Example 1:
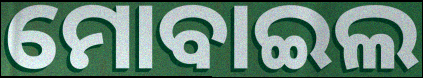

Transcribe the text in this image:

ମୋବାଇଲ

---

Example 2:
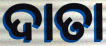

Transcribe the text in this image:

ଦାତା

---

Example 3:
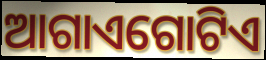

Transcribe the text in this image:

ଆଗାଏଗୋଟିଏ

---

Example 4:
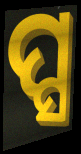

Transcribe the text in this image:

ପ୍ସ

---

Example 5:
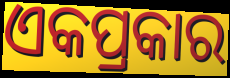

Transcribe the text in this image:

ଏକପ୍ରକାର